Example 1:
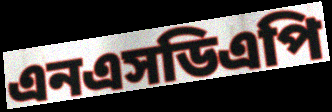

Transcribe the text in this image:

এনএসডিএপি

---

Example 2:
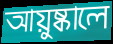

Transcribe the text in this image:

আয়ুষ্কালে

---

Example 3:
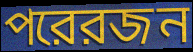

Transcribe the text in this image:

পরেরজন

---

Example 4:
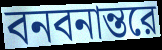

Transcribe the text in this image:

বনবনান্তরে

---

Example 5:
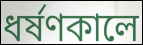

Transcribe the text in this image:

ধর্ষণকালে